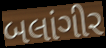
બલાંગીર